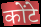
कोंटे